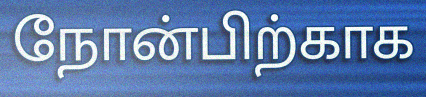
நோன்பிற்காக